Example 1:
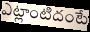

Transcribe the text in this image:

ఎట్లాంటిదంటే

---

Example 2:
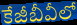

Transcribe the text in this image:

కేజీబీవీలో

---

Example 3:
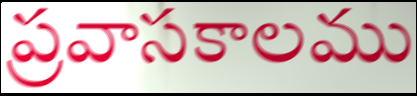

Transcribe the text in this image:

ప్రవాసకాలము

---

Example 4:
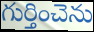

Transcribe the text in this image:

గుర్తించెను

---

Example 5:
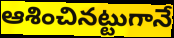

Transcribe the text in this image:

ఆశించినట్టుగానే